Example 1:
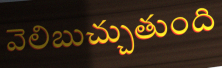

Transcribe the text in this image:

వెలిబుచ్చుతుంది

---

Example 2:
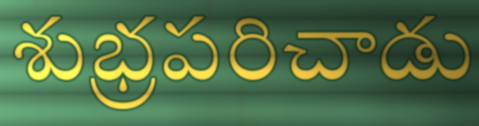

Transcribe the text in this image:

శుభ్రపరిచాడు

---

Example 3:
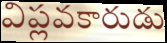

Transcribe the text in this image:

విప్లవకారుడు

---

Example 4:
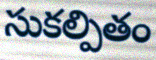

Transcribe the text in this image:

సుకల్పితం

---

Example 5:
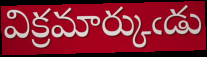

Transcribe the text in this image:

విక్రమార్కుఁడు